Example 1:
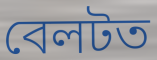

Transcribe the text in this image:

বেলটত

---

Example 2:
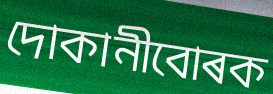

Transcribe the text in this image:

দোকানীবোৰক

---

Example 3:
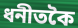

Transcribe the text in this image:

ধনীতকৈ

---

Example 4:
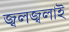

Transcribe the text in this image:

জ্বলজ্বলাই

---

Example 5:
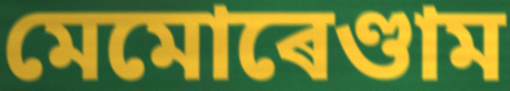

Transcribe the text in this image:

মেমোৰেণ্ডাম